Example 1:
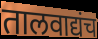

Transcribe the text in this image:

तालवाद्यंच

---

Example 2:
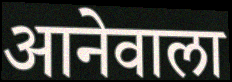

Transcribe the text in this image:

आनेवाला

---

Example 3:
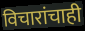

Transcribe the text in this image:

विचारांचाही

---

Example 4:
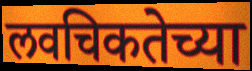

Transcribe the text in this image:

लवचिकतेच्या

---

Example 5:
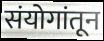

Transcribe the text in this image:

संयोगांतून